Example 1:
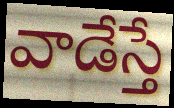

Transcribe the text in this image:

వాడేస్తే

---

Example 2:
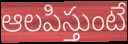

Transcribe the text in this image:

ఆలపిస్తుంటే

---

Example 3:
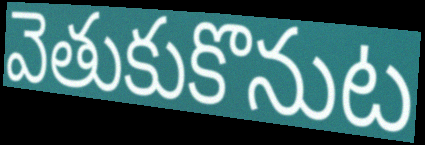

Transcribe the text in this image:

వెతుకుకొనుట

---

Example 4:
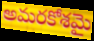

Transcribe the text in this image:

అమరకోశమై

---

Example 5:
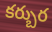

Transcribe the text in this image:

కర్బుర